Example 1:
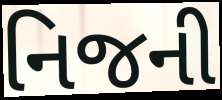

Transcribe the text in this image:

નિજની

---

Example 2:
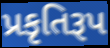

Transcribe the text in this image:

પ્રકૃતિરૂપ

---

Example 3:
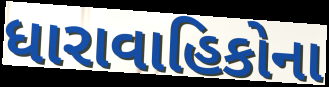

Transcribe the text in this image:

ધારાવાહિકોના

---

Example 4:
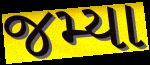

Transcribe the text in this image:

જમ્યા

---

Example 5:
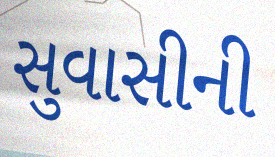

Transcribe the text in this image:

સુવાસીની